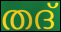
തദ്